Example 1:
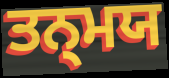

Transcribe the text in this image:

ਤਨ੍ਮਯ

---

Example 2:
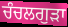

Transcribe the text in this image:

ਚੰਚਲਗੁੜਾ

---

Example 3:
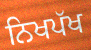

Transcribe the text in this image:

ਨਿਖਪੱਖ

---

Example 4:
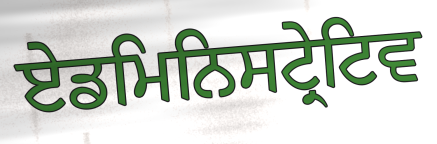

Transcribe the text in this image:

ਏਡਮਿਨਿਸਟ੍ਰੇਟਿਵ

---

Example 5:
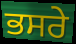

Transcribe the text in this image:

ਭਸਰੇ